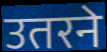
उतरने